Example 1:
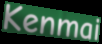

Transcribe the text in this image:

Kenmai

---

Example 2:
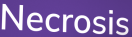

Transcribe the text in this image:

Necrosis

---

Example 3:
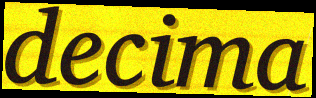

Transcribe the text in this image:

decima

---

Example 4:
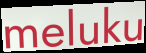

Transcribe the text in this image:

meluku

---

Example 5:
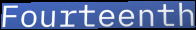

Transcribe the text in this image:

Fourteenth